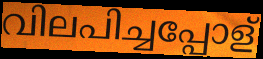
വിലപിച്ചപ്പോള്